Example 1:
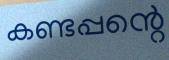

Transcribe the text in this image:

കണ്ടപ്പന്റെ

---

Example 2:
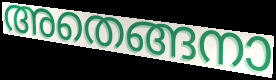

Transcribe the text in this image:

അതെങ്ങനാ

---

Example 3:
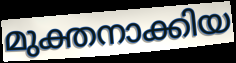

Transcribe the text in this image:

മുക്തനാക്കിയ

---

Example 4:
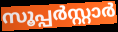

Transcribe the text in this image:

സൂപ്പർസ്റ്റാർ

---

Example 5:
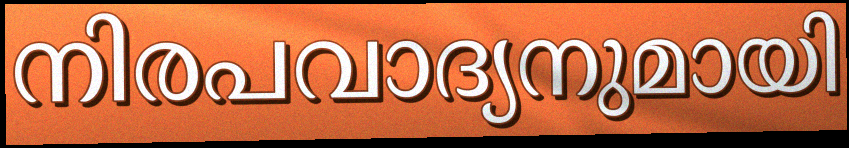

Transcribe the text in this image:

നിരപവാദ്യനുമായി